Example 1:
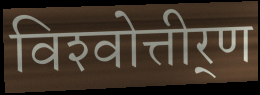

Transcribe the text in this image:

विश्वोत्तीर्ण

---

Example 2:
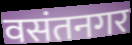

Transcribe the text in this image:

वसंतनगर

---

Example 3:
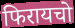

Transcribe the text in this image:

फिरायचो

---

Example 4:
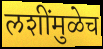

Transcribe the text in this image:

लशींमुळेच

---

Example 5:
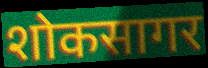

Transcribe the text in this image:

शोकसागर